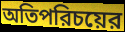
অতিপরিচয়ের